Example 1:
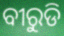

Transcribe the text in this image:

ବୀରୁଡି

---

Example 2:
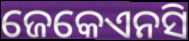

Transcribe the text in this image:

ଜେକେଏନସି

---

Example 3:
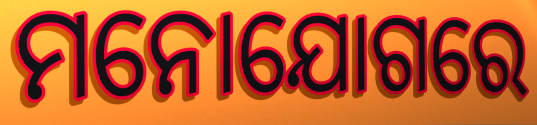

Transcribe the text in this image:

ମନୋଯୋଗରେ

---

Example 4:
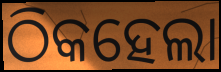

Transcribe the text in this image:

ଠିକହେଲା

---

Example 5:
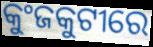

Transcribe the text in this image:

କୁଂଜକୁଟୀରେ